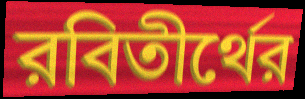
রবিতীর্থের